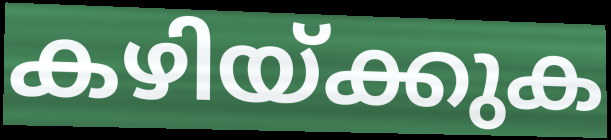
കഴിയ്ക്കുക